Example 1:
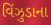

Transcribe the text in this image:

વિંઝુડાના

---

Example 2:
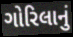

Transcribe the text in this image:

ગોરિલાનું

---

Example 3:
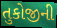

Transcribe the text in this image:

તુકોજીની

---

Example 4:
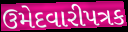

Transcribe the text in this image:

ઉમેદવારીપત્રક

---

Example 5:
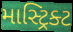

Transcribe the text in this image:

માસ્ટ્રિક્ટ